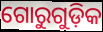
ଗୋରୁଗୁଡ଼ିକ